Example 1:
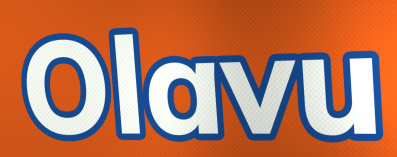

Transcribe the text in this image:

Olavu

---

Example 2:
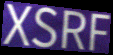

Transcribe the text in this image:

XSRF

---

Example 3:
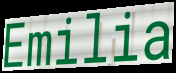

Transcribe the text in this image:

Emilia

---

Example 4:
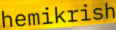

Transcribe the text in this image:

hemikrish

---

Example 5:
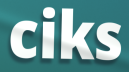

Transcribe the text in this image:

ciks